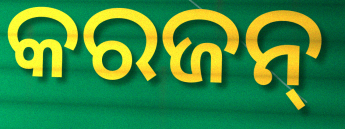
କରଜନ୍